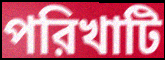
পরিখাটি